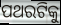
ପଥରଟିକୁ